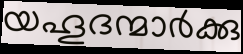
യഹൂദന്മാർക്കു